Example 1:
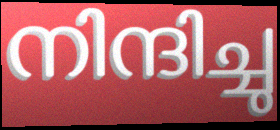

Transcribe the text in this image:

നിന്ദിച്ചു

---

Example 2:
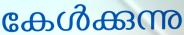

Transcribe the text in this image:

കേൾക്കുന്നു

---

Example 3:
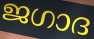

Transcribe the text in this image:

ജഗാദ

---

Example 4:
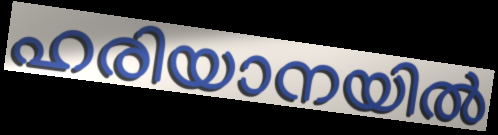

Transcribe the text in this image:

ഹരിയാനയിൽ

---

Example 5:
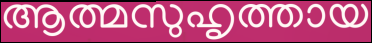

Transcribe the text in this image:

ആത്മസുഹൃത്തായ